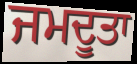
ਜਮਦੂਤਾ